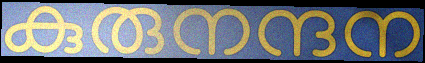
കുരുനന്ദന